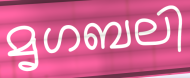
മൃഗബലി